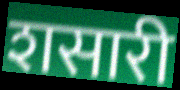
शसारी